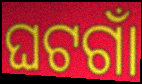
ଘଟଗାଁ